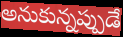
అనుకున్నప్పుడే